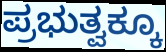
ಪ್ರಭುತ್ವಕ್ಕೂ